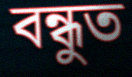
বন্ধুত